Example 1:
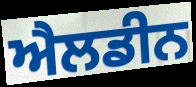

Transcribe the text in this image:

ਐਲਡੀਨ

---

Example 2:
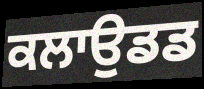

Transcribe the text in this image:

ਕਲਾਉਡਡ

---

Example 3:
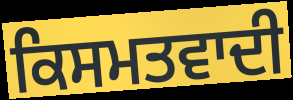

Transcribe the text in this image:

ਕਿਸਮਤਵਾਦੀ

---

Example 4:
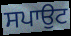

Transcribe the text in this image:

ਸਪਾਉਟ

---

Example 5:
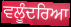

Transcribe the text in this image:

ਵਲੂੰਦਰਿਆ